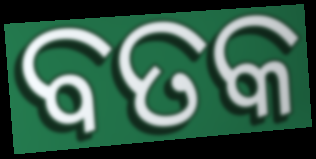
ବତକ